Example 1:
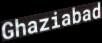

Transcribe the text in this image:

Ghaziabad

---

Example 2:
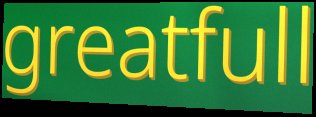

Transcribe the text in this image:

greatfull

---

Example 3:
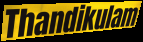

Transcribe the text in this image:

Thandikulam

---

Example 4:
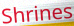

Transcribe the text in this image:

Shrines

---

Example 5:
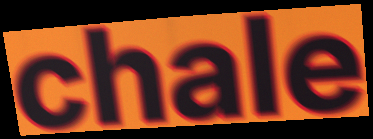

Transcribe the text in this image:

chale